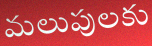
మలుపులకు